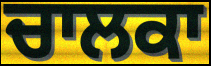
ਚਾਲਕਾ